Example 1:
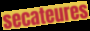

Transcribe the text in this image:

secateures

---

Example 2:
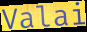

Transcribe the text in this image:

Valai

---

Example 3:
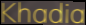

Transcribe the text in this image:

Khadia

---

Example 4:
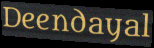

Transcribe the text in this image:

Deendayal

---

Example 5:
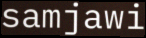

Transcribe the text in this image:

samjawi